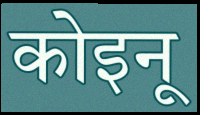
कोइनू